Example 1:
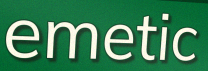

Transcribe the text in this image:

emetic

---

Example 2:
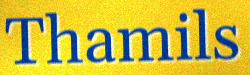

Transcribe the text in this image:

Thamils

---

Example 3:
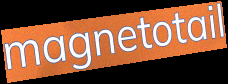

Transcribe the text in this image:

magnetotail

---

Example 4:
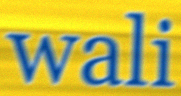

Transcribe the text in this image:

wali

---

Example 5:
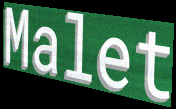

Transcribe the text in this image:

Malet